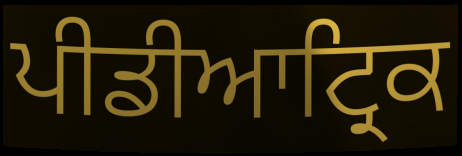
ਪੀਡੀਆਟ੍ਰਿਕ